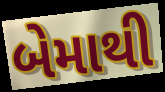
બેમાથી